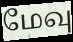
மேவு